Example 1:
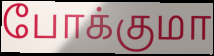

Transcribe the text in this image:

போக்குமா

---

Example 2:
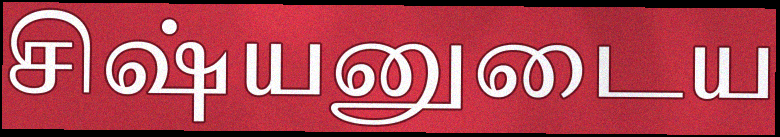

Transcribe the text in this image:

சிஷ்யனுடைய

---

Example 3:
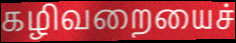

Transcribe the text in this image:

கழிவறையைச்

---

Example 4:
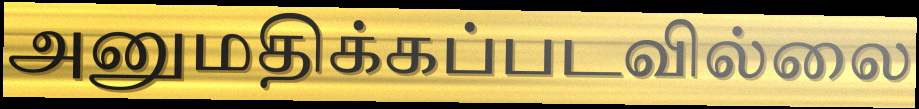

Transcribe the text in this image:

அனுமதிக்கப்படவில்லை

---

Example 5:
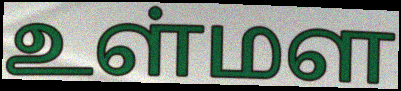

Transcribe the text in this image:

உள்மள